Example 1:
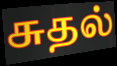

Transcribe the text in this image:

சுதல்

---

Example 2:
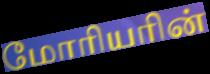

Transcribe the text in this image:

மோரியரின்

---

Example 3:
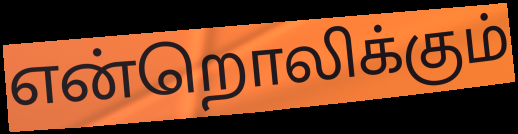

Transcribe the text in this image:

என்றொலிக்கும்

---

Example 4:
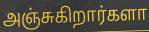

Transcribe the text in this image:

அஞ்சுகிறார்களா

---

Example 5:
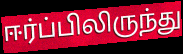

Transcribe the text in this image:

ஈர்ப்பிலிருந்து